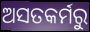
ଅସତକର୍ମରୁ